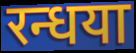
रन्धया